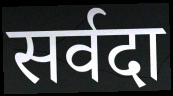
सर्वदा